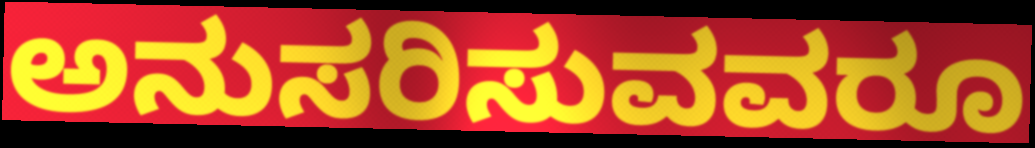
ಅನುಸರಿಸುವವರೂ